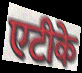
एटीके